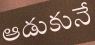
ఆడుకునే